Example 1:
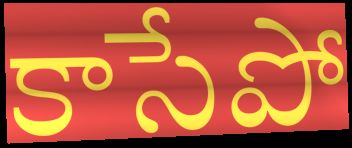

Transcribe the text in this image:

కాసేపో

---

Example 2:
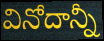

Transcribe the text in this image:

వినోదాన్నీ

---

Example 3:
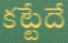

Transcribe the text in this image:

కట్టేదే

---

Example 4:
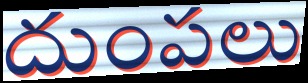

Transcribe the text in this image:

దుంపలు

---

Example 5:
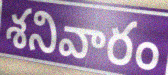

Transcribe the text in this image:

శనివారం